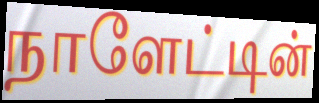
நாளேட்டின்